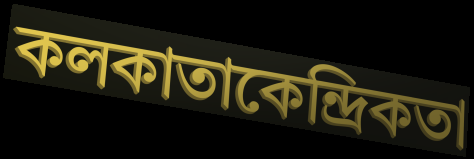
কলকাতাকেন্দ্রিকতা